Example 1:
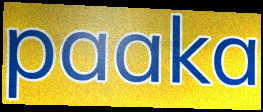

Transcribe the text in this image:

paaka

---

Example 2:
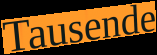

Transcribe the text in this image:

Tausende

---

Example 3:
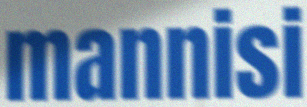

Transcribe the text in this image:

mannisi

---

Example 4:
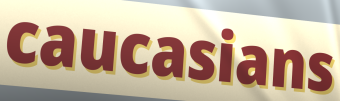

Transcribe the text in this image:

caucasians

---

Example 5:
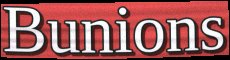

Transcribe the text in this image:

Bunions